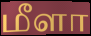
மீளா